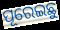
ପୂରେଇଛୁ